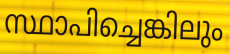
സ്ഥാപിച്ചെങ്കിലും